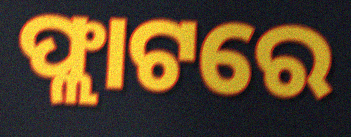
ଫ୍ଲାଟରେ